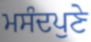
ਮਸੰਦਪੁਣੇ